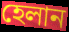
হেলান